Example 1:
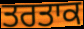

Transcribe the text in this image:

ਤਰਤਾਕ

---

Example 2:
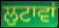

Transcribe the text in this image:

ਲੁਟਾਵਾਂ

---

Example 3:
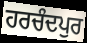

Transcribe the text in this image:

ਹਰਚੰਦਪੁਰ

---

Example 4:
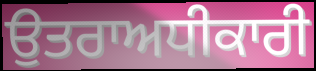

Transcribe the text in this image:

ਉਤਰਾਅਧੀਕਾਰੀ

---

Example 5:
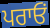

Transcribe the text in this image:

ਪਰਾਓਂ